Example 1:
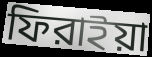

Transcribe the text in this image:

ফিরাইয়া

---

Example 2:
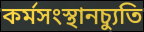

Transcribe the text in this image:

কর্মসংস্থানচ্যুতি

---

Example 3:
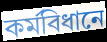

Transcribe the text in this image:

কর্মবিধানে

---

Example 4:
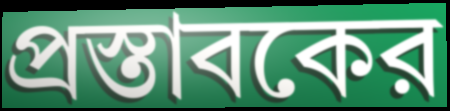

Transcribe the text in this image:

প্রস্তাবকের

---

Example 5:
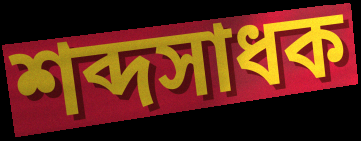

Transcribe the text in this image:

শব্দসাধক